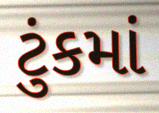
ટુંકમાં